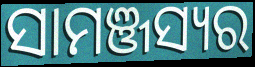
ସାମଞ୍ଜସ୍ୟର